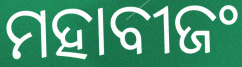
ମହାବୀଜଂ